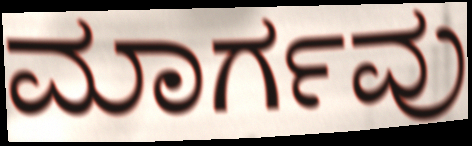
ಮಾರ್ಗವು